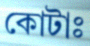
কোটাঃ